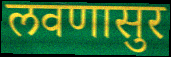
लवणासुर